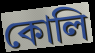
কোলি